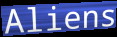
Aliens